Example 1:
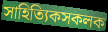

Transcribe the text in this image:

সাহিত্যিকসকলক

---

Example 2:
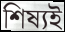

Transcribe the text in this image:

শিষ্যই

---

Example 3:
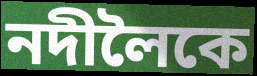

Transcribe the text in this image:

নদীলৈকে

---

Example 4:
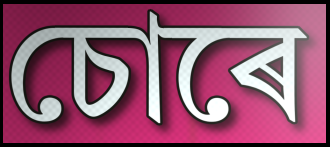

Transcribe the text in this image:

চোৰে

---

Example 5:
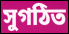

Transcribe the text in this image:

সুগঠিত